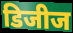
डिजीज